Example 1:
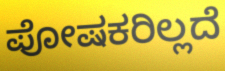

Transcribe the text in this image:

ಪೋಷಕರಿಲ್ಲದೆ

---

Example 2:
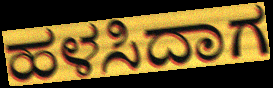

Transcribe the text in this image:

ಹಳಸಿದಾಗ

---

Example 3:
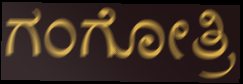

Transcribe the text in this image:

ಗಂಗೋತ್ರಿ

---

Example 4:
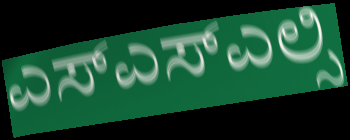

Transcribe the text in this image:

ಎಸ್ಎಸ್ಎಲ್ಸಿ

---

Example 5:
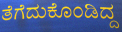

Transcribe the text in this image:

ತೆಗೆದುಕೊಂಡಿದ್ದ